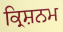
ਕ੍ਰਿਸ਼ਨਮ